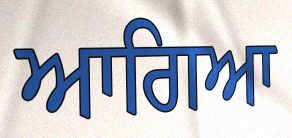
ਆਗਿਆ